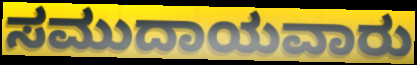
ಸಮುದಾಯವಾರು